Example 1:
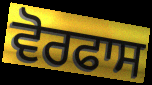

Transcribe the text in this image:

ਵੋਰਫਾਸ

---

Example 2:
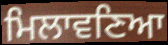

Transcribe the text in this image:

ਮਿਲਾਵਣਿਆ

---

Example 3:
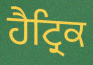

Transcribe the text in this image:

ਹੈਟ੍ਰਿਕ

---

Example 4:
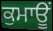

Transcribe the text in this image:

ਕੁਮਾਊਂ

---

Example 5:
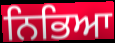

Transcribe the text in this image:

ਨਿਭਿਆ